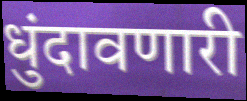
धुंदावणारी